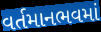
વર્તમાનભવમાં